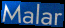
Malar